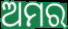
ଅମର